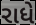
રાધે